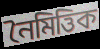
নৈমিত্তিক